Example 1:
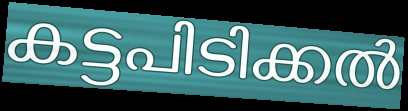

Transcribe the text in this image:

കട്ടപിടിക്കൽ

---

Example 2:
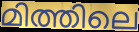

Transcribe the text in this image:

മിത്തിലെ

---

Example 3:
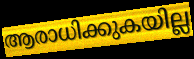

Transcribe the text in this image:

ആരാധിക്കുകയില്ല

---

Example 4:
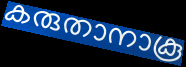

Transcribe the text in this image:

കരുതാനാകൂ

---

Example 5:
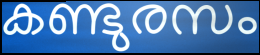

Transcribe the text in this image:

കണ്ടുരസം